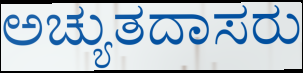
ಅಚ್ಯುತದಾಸರು